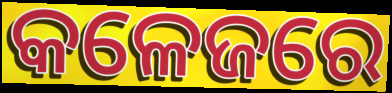
କଳେଜରେ